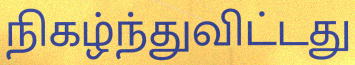
நிகழ்ந்துவிட்டது